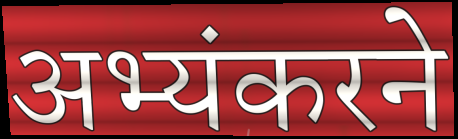
अभ्यंकरने